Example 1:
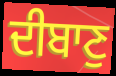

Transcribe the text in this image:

ਦੀਬਾਣੁ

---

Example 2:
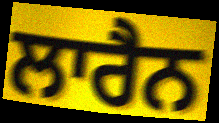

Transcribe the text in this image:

ਲਾਰੈਨ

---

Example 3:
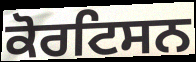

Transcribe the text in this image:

ਕੋਰਟਿਸਨ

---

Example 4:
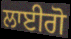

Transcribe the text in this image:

ਲਾਈਗੋ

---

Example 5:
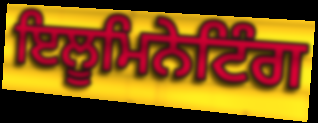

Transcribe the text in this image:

ਇਲੂਮਿਨੇਟਿੰਗ